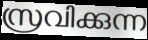
സ്രവിക്കുന്ന